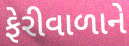
ફેરીવાળાને